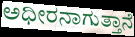
ಅಧೀರನಾಗುತ್ತಾನೆ